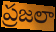
ప్రజలా